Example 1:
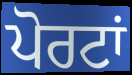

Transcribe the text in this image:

ਪੋਰਟਾਂ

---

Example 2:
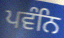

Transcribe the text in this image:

ਪਵੰਨਿ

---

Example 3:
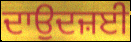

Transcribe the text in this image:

ਦਾਉਦਜ਼ਈ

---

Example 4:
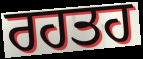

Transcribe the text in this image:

ਰਹਤਹ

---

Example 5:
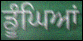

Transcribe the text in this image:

ਡੂੰਘਿਆਂ